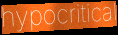
hypocritical